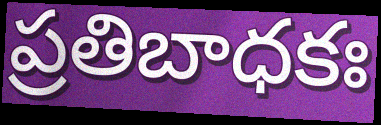
ప్రతిబాధకః